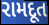
રામદૂત